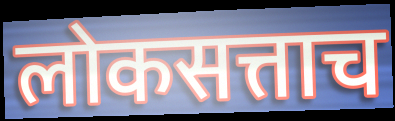
लोकसत्ताच